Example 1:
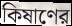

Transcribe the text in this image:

কিষাণের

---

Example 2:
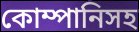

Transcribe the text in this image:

কোম্পানিসহ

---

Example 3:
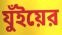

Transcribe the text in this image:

যুঁইয়ের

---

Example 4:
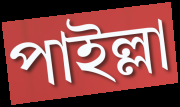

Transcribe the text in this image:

পাইল্লা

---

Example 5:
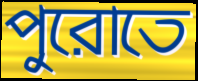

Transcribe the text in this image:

পুরোতে